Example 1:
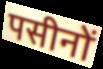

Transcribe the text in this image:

पसीनों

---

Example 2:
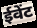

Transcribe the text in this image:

ईवेंट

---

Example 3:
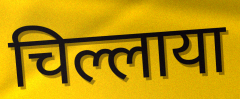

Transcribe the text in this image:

चिल्लाया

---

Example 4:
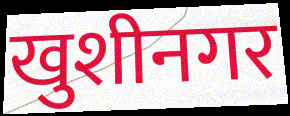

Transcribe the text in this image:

खुशीनगर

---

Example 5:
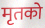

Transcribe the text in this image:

मृतको